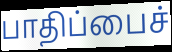
பாதிப்பைச்